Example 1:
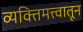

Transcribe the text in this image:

व्यक्तिमत्त्वातून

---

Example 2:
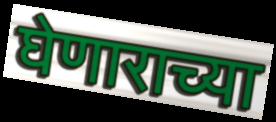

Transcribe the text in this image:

घेणाराच्या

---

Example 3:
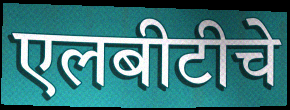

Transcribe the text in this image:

एलबीटीचे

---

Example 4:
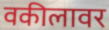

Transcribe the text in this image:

वकीलावर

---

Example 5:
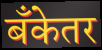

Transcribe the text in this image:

बँकेतर